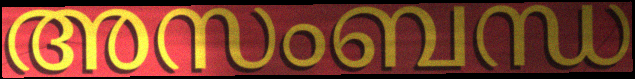
അസംബന്ധ